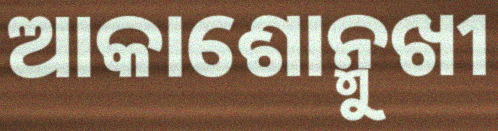
ଆକାଶୋନ୍ମୁଖୀ